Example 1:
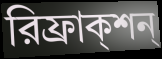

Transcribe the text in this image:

রিফ্রাক্শন্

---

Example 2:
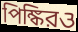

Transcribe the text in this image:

পিঙ্কিরও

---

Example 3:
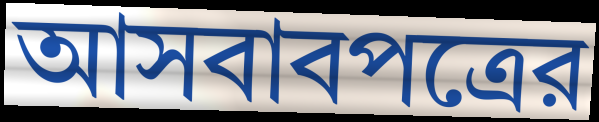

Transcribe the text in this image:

আসবাবপত্রের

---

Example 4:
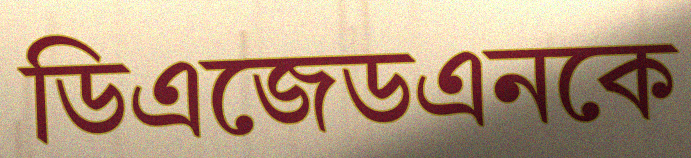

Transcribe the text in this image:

ডিএজেডএনকে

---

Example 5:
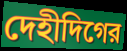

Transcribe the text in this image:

দেহীদিগের